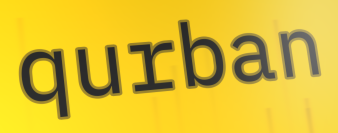
qurban